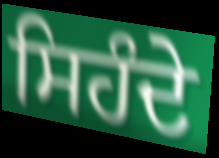
ਸਿਹੰਦੇ